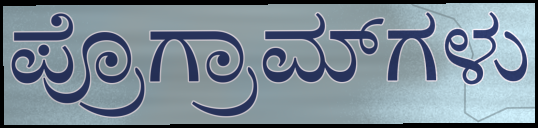
ಪ್ರೊಗ್ರಾಮ್‌ಗಳು